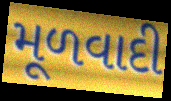
મૂળવાદી